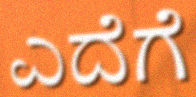
ಎದೆಗೆ